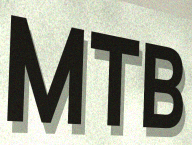
MTB